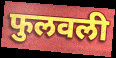
फुलवली